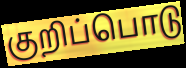
குறிப்பொடு